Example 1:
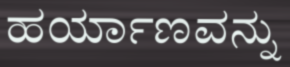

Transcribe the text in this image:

ಹರ್ಯಾಣವನ್ನು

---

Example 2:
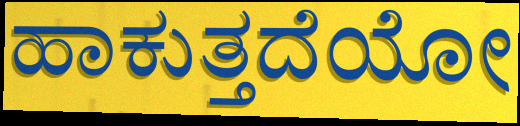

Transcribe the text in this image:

ಹಾಕುತ್ತದೆಯೋ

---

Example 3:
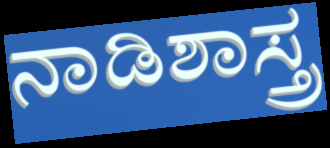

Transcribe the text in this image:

ನಾಡಿಶಾಸ್ತ್ರ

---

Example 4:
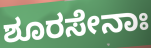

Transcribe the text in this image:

ಶೂರಸೇನಾಃ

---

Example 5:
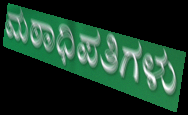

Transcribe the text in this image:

ಮಠಾಧಿಪತಿಗಳು